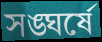
সঙ্ঘর্ষে